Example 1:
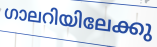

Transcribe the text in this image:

ഗാലറിയിലേക്കു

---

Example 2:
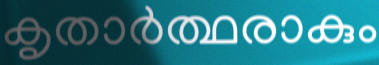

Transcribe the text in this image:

കൃതാർത്ഥരാകും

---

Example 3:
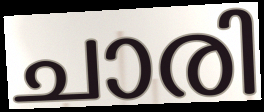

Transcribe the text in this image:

ചാരി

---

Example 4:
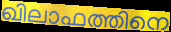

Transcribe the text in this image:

ഖിലാഫത്തിനെ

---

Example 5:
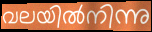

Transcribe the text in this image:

വലയിൽനിന്നു